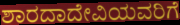
ಶಾರದಾದೇವಿಯವರಿಗೆ